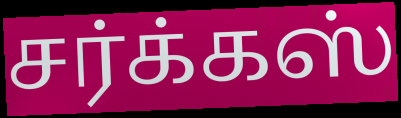
சர்க்கஸ்